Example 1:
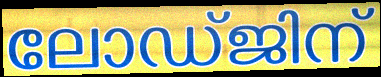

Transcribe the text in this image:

ലോഡ്ജിന്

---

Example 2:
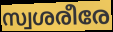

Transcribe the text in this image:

സ്വശരീരേ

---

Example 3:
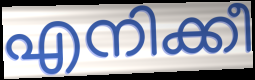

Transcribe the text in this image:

എനിക്കീ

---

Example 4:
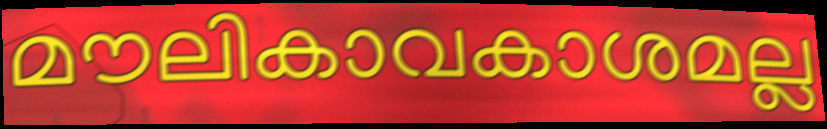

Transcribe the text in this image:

മൗലികാവകാശമല്ല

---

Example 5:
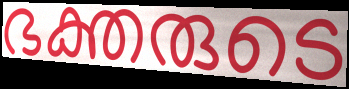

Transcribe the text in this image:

ഭക്തരുടെ